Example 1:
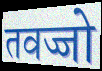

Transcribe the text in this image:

तवज्जो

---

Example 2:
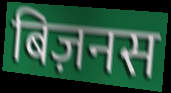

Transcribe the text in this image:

बिज़नस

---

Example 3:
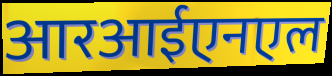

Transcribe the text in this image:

आरआईएनएल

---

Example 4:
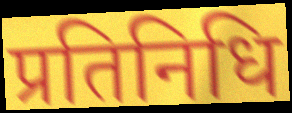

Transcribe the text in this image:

प्रतिनिधि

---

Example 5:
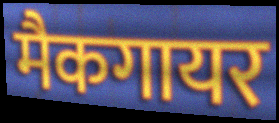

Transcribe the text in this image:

मैकगायर